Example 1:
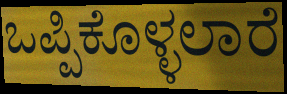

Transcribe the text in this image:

ಒಪ್ಪಿಕೊಳ್ಳಲಾರೆ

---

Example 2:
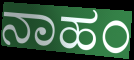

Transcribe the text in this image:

ನಾಹಂ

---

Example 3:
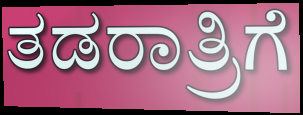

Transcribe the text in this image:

ತಡರಾತ್ರಿಗೆ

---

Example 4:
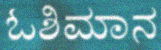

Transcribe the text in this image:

ಓಶಿಮಾನ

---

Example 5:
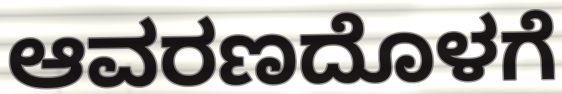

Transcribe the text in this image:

ಆವರಣದೊಳಗೆ